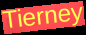
Tierney